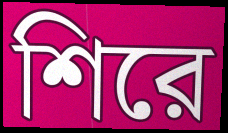
শিরে